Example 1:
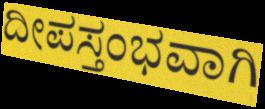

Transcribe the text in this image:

ದೀಪಸ್ತಂಭವಾಗಿ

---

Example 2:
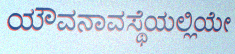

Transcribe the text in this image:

ಯೌವನಾವಸ್ಥೆಯಲ್ಲಿಯೇ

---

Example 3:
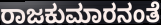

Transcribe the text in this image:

ರಾಜಕುಮಾರನಂತೆ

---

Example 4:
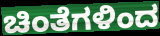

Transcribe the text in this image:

ಚಿಂತೆಗಳಿಂದ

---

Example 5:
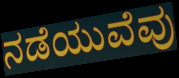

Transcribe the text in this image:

ನಡೆಯುವೆವು